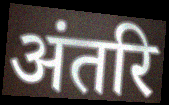
अंतरि